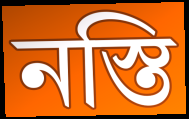
নস্তি